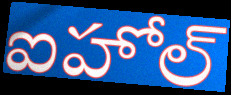
ఐహోల్